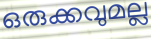
ഒരുക്കവുമല്ല